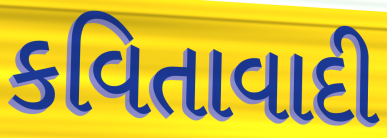
કવિતાવાદી